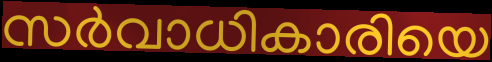
സർവാധികാരിയെ